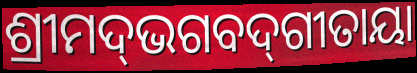
ଶ୍ରୀମଦ୍‌ଭଗବଦ୍‌ଗୀତାୟା